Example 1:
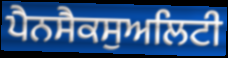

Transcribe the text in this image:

ਪੈਨਸੈਕਸੁਅਲਿਟੀ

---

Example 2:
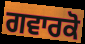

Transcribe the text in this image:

ਗਵਾਰਕੋ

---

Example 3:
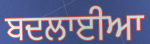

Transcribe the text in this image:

ਬਦਲਾਈਆ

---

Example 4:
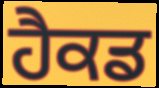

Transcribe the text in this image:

ਹੈਕਡ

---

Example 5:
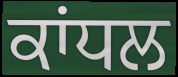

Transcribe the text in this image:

ਕਾਂਧਲ